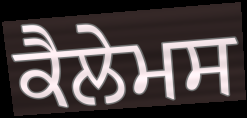
ਕੈਲੇਮਸ